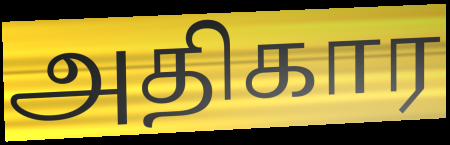
அதிகார